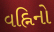
વહ્નિનો